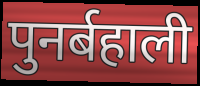
पुनर्बहाली